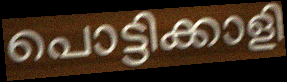
പൊട്ടിക്കാളി